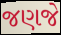
જણજે